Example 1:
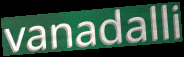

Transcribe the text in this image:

vanadalli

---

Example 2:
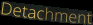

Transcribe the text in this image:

Detachment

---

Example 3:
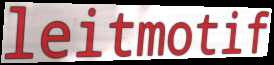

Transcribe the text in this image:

leitmotif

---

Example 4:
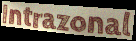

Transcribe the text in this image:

Intrazonal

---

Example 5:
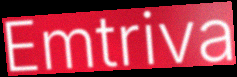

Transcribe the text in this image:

Emtriva